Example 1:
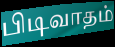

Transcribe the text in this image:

பிடிவாதம்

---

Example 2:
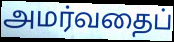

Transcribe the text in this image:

அமர்வதைப்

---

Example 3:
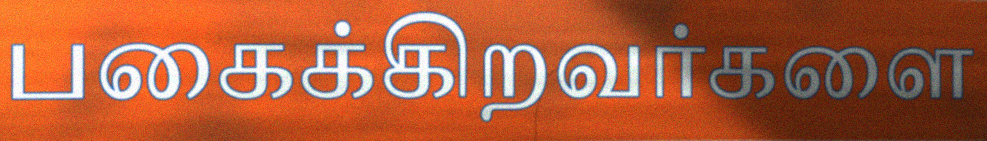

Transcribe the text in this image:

பகைக்கிறவர்களை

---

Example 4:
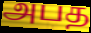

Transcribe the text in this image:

அபத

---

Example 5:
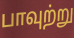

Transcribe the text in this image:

பாவுற்று